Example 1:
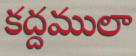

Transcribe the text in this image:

కద్దములా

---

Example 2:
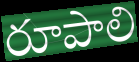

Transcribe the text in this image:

రూపాలి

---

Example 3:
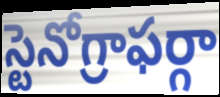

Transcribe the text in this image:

స్టెనోగ్రాఫర్గా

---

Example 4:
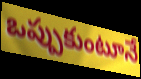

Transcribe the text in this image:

ఒప్పుకుంటూనే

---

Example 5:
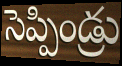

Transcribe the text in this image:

సెప్పిండ్రు